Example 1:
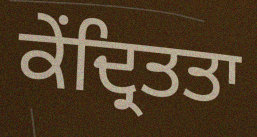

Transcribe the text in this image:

ਕੇਂਦ੍ਰਿਤਤਾ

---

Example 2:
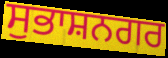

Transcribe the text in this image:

ਸੁਭਾਸ਼ਨਗਰ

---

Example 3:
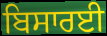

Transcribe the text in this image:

ਬਿਸਾਰਈ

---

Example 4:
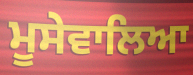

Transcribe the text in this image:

ਮੂਸੇਵਾਲਿਆ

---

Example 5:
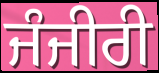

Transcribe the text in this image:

ਜੰਜੀਰੀ